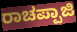
ರಾಚಪ್ಪಾಜಿ